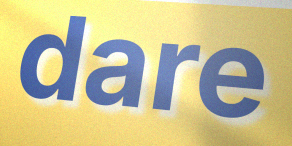
dare